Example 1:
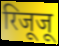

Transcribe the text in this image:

रिजूजू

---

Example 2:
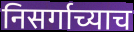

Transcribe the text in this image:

निसर्गाच्याच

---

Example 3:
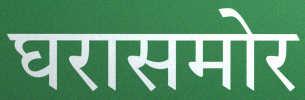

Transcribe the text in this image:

घरासमोर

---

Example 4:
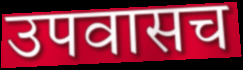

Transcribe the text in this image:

उपवासच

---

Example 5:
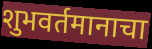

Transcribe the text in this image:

शुभवर्तमानाचा